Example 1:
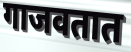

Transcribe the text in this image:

गाजवतात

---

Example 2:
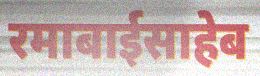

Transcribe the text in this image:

रमाबाईसाहेब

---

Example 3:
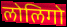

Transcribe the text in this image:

लोलिगो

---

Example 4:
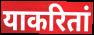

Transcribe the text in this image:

याकरितां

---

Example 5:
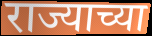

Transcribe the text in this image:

राज्याच्या